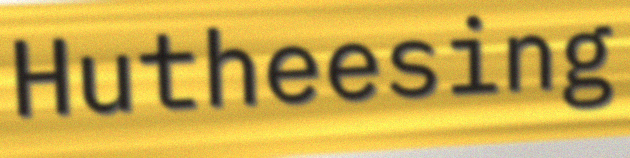
Hutheesing